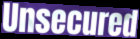
Unsecured